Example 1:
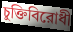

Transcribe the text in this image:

চুক্তিবিরোধী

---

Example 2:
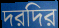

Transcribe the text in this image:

দরদির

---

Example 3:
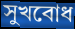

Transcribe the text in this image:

সুখবোধ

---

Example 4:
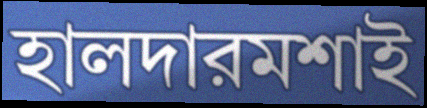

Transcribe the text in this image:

হালদারমশাই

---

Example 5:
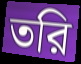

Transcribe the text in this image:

তরি